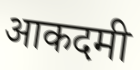
आकदमी